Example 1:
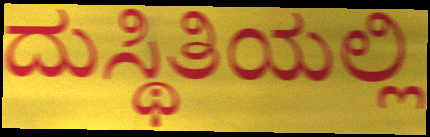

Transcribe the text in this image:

ದುಸ್ಥಿತಿಯಲ್ಲಿ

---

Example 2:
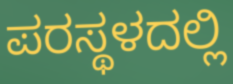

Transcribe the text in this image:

ಪರಸ್ಥಳದಲ್ಲಿ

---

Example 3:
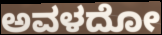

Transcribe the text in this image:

ಅವಳದೋ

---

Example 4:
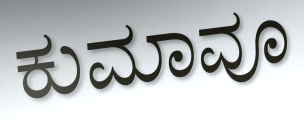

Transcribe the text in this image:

ಕುಮಾವೂ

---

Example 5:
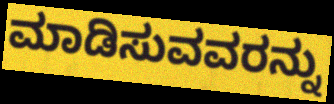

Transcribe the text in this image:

ಮಾಡಿಸುವವರನ್ನು